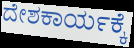
ದೇಶಕಾರ್ಯಕ್ಕೆ